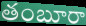
తంబూరా